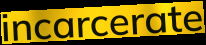
incarcerate